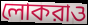
লোকরাও